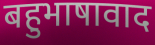
बहुभाषावाद